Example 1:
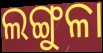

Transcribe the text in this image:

ଲଙ୍ଗୁଳା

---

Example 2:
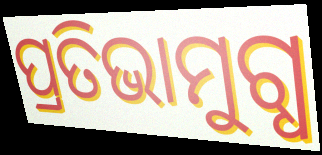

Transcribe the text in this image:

ପ୍ରତିଭାମୁଗ୍ଧ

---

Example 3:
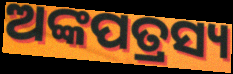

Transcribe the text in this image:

ଅଙ୍କପତ୍ରସ୍ୟ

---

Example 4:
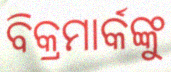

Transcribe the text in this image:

ବିକ୍ରମାର୍କଙ୍କୁ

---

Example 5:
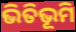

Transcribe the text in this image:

ଭିତିଭୂମି